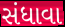
સંધાવા